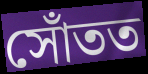
সোঁতত